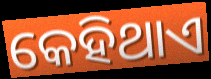
କେହିଥାଏ